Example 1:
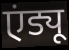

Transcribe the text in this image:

एंड्यू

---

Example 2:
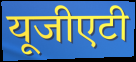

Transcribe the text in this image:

यूजीएटी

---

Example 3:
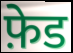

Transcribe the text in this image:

फ़ेड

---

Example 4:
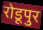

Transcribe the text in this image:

रोडूपुर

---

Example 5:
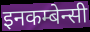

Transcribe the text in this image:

इनकम्बेन्सी